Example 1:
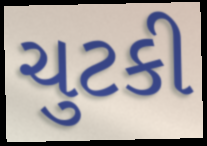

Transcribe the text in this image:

ચુટકી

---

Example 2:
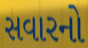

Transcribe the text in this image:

સવારનો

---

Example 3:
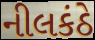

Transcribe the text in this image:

નીલકંઠે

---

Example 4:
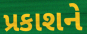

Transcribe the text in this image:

પ્રકાશને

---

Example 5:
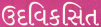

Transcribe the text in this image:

ઉદવિકસિત